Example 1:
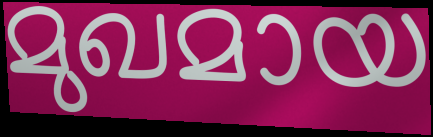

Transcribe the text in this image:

മുഖമായ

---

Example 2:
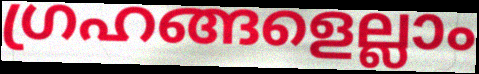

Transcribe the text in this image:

ഗ്രഹങ്ങളെല്ലാം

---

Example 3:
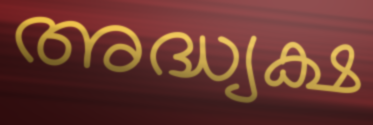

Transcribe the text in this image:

അദ്ധ്യക്ഷ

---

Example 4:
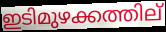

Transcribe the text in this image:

ഇടിമുഴക്കത്തില്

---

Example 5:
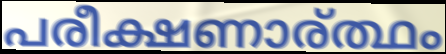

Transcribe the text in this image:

പരീക്ഷണാര്ത്ഥം